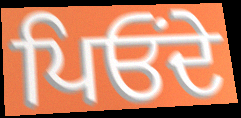
ਪਿਓਂਦੇ